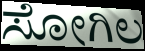
ಸೋಗಿಲ